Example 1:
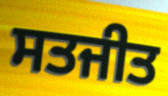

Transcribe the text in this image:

ਸਤਜੀਤ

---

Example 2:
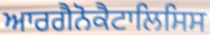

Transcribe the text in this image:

ਆਰਗੈਨੋਕੈਟਾਲਿਸਿਸ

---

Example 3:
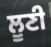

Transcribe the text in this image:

ਲੂਣੀ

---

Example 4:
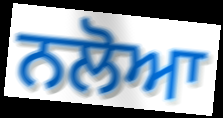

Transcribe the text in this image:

ਨਲੋਆ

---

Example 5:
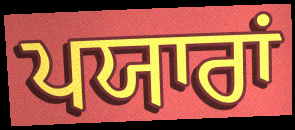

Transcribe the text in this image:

ਪਯਾਰਾਂ